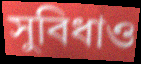
সুবিধাও